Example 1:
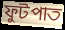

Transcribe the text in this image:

ফুটপাত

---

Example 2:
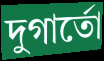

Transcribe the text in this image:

দুগার্তো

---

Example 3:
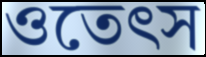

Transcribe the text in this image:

ওতেৎস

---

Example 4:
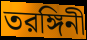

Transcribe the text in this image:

তরঙ্গিনী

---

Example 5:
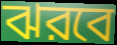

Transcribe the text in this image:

ঝরবে